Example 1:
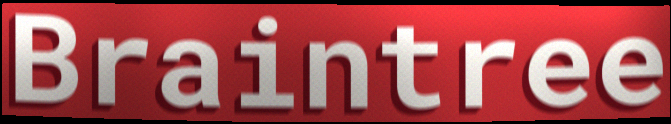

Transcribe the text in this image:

Braintree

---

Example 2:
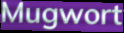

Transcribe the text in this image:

Mugwort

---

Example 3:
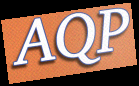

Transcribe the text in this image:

AQP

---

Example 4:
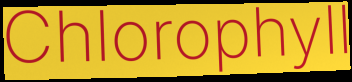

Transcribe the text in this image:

Chlorophyll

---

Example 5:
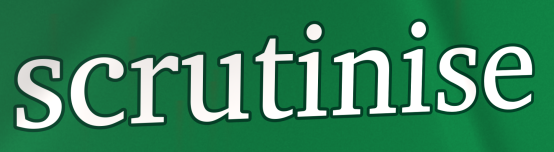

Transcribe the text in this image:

scrutinise